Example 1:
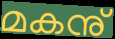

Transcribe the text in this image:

മകനു്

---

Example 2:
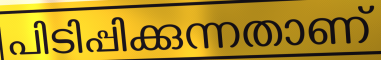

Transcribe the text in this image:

പിടിപ്പിക്കുന്നതാണ്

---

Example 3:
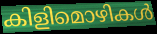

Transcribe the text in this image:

കിളിമൊഴികൾ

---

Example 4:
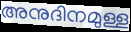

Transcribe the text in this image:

അനുദിനമുള്ള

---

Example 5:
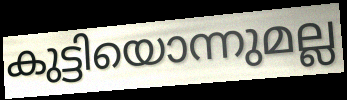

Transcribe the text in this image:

കുട്ടിയൊന്നുമല്ല